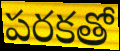
పరకతో